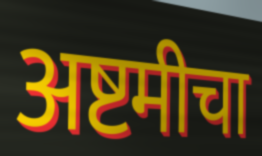
अष्टमीचा